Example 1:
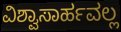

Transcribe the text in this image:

ವಿಶ್ವಾಸಾರ್ಹವಲ್ಲ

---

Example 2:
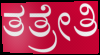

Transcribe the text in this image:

ತತ್ರೇತಿ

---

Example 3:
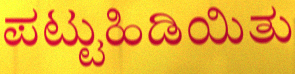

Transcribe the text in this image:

ಪಟ್ಟುಹಿಡಿಯಿತು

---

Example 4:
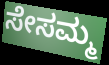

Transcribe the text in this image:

ಸೇಸಮ್ಮ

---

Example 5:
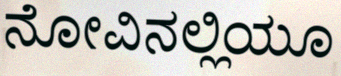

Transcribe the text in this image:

ನೋವಿನಲ್ಲಿಯೂ